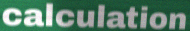
calculation